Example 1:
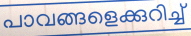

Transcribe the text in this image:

പാവങ്ങളെക്കുറിച്ച്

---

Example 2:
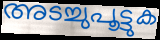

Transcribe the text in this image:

അടച്ചുപൂട്ടുക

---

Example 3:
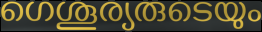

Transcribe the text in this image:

ഗെശൂര്യരുടെയും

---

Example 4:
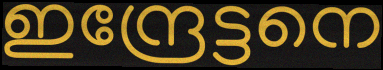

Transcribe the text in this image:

ഇന്ദ്രേട്ടനെ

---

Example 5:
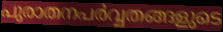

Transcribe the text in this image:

പുരാതനപർവ്വതങ്ങളുടെ